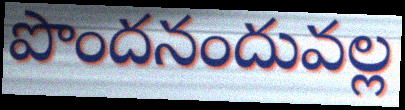
పొందనందువల్ల